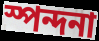
স্পন্দনা